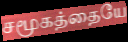
சமூகத்தையே